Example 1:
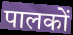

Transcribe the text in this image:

पालकों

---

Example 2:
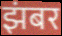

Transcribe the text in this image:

झंबर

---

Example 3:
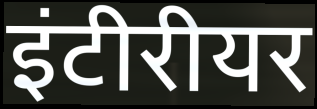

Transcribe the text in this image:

इंटीरीयर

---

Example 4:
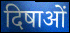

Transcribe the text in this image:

दिषाओं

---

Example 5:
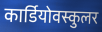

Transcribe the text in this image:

कार्डियोवस्कुलर